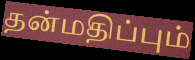
தன்மதிப்பும்